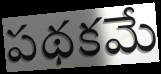
పథకమే